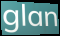
glan